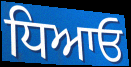
ਧਿਆਓ